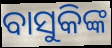
ବାସୁକିଙ୍କ